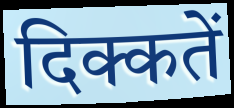
दिक्कतें